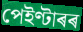
পেইণ্টাৰৰ